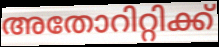
അതോറിറ്റിക്ക്